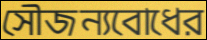
সৌজন্যবোধের